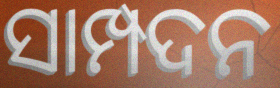
ସାମ୍ପଦନ